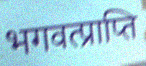
भगवत्प्राप्ति